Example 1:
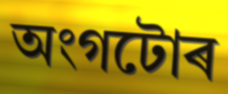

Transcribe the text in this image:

অংগটোৰ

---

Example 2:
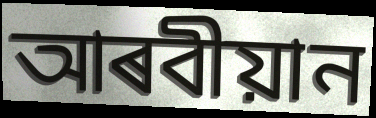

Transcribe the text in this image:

আৰবীয়ান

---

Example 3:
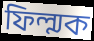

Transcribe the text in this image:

ফিল্মক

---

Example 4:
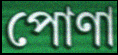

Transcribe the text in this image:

পোণা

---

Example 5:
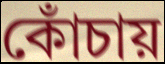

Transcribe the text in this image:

কোঁচায়